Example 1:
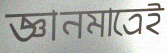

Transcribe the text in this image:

জ্ঞানমাত্রেই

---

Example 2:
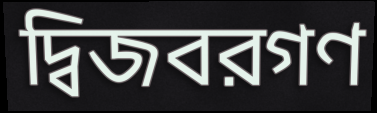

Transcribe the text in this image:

দ্বিজবরগণ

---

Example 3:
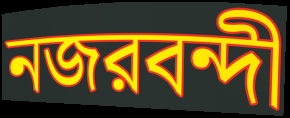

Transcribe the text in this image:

নজরবন্দী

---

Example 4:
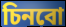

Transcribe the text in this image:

চিনবো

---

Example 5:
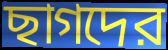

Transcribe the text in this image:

ছাগদের